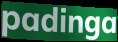
padinga